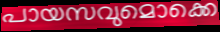
പായസവുമൊക്കെ